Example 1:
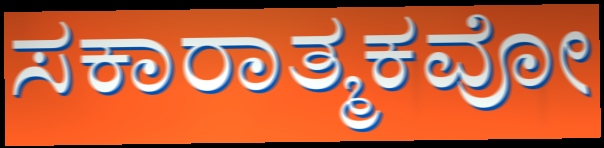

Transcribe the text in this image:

ಸಕಾರಾತ್ಮಕವೋ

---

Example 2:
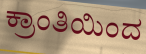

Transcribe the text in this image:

ಕ್ರಾಂತಿಯಿಂದ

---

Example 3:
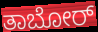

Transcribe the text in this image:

ತಾಬೋರ್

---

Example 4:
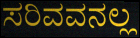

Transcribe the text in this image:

ಸರಿವವನಲ್ಲ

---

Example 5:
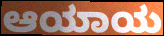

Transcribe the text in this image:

ಆಯಾಯ